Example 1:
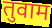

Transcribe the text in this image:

तुवाम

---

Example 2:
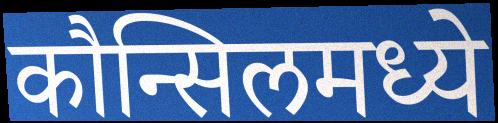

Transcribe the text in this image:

कौन्सिलमध्ये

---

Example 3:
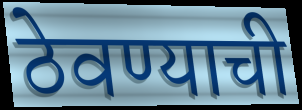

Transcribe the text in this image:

ठेवण्याची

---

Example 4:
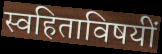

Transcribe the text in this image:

स्वहिताविषयीं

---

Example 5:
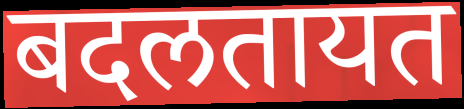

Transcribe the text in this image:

बदलतायत